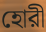
হোরী